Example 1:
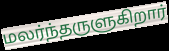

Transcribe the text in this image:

மலர்ந்தருளுகிறார்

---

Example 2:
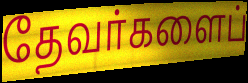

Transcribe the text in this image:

தேவர்களைப்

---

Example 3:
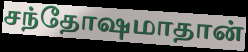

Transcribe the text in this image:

சந்தோஷமாதான்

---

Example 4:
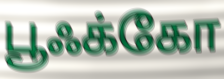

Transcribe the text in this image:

பூஃக்கோ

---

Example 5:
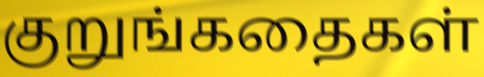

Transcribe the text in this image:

குறுங்கதைகள்